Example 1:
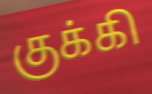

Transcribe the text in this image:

குக்கி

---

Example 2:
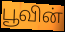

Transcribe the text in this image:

பூவின்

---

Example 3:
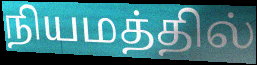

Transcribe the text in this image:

நியமத்தில்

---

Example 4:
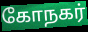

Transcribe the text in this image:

கோநகர்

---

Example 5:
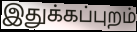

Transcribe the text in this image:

இதுக்கப்புறம்